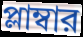
প্লাম্বার